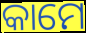
କାମେ